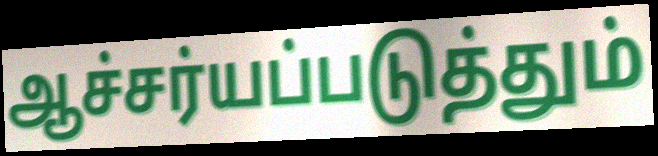
ஆச்சர்யப்படுத்தும்